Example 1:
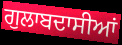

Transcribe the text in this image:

ਗੁਲਾਬਦਾਸੀਆਂ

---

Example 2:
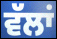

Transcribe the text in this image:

ਵੱਲਾਂ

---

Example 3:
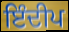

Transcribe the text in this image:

ਇੰਦੀਪ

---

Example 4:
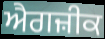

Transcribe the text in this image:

ਐਗਜ਼ੀਕ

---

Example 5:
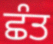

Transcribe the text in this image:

ਛੰਤ